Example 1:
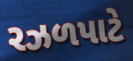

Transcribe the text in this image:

રઝળપાટે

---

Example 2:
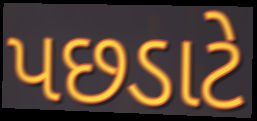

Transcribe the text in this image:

પછડાટે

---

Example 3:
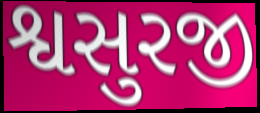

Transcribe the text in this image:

શ્વસુરજી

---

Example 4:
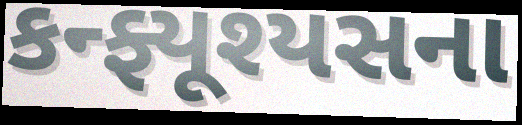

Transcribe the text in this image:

કન્ફ્યૂશ્યસના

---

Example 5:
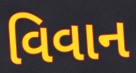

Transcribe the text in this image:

વિવાન